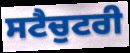
ਸਟੈਚੁਟਰੀ